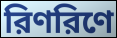
রিণরিণে